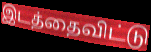
இடத்தைவிட்டு